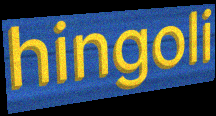
hingoli